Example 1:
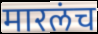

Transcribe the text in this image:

मारलंच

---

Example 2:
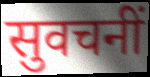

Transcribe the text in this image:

सुवचनीं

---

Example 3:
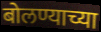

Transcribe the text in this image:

बोलण्याच्या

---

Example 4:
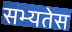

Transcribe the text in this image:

सभ्यतेस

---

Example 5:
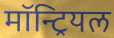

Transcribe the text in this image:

मॉन्ट्रियल